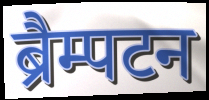
ब्रैम्पटन